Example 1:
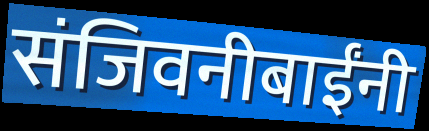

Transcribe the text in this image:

संजिवनीबाईंनी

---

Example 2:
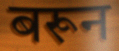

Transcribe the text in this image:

बरून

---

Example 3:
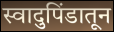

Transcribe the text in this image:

स्वादुपिंडातून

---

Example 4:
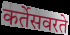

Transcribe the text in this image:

कर्तेसवरते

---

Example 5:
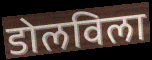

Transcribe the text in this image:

डोलविला